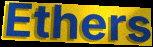
Ethers